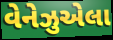
વેનેઝુએલા